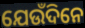
ଯେଉଁଦିନେ